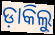
ଡ଼ାକିଲୁ